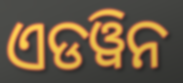
ଏଡୱିନ